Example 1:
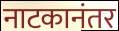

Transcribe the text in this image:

नाटकानंतर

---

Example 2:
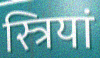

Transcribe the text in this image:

स्त्रियां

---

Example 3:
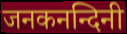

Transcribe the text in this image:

जनकनन्दिनी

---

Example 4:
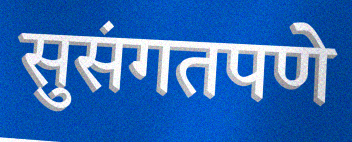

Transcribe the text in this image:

सुसंगतपणे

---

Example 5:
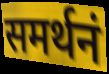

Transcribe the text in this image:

समर्थनं